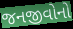
જનજીવોનો